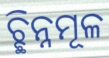
ଚ୍ଛିନ୍ନମୂଳ